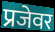
प्रजेवर